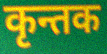
कृन्तक